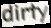
dirty